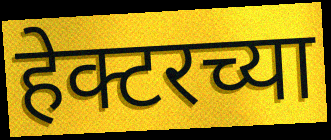
हेक्टरच्या